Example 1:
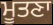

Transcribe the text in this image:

ਮੂਤਣਾ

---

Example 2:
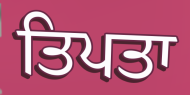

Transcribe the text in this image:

ਤਿਪਤਾ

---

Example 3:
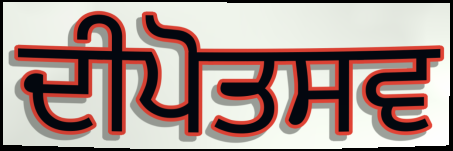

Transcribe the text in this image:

ਦੀਪੋਤਸਵ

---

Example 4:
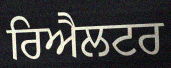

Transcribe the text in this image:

ਰਿਐਲਟਰ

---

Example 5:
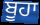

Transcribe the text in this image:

ਬੂਹਾ